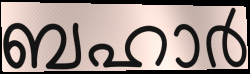
ബഹാർ